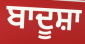
ਬਾਦੂਸ਼ਾ